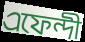
এফেন্দী